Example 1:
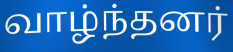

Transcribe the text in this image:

வாழ்ந்தனர்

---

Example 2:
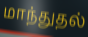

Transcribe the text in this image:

மாந்துதல்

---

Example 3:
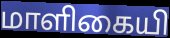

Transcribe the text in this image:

மாளிகையி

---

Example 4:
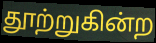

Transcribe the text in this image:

தூற்றுகின்ற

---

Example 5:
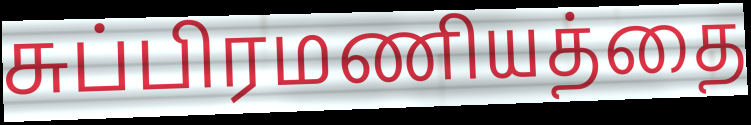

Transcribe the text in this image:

சுப்பிரமணியத்தை